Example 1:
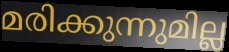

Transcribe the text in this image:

മരിക്കുന്നുമില്ല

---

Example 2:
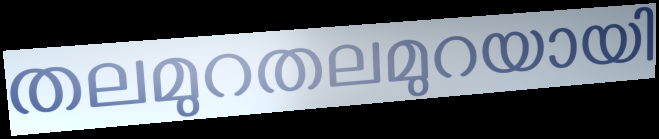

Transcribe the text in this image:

തലമുറതലമുറയായി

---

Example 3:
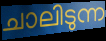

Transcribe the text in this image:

ചാലിടുന്ന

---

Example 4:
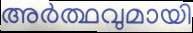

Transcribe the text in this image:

അർത്ഥവുമായി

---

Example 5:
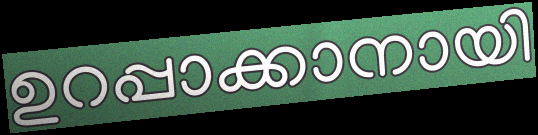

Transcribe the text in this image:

ഉറപ്പാക്കാനായി